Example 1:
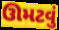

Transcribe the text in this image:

ઊમટવું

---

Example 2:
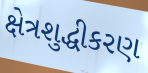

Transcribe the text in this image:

ક્ષેત્રશુદ્ધીકરણ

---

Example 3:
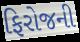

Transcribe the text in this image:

ફિરોજની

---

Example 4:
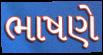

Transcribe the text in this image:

ભાષણે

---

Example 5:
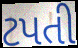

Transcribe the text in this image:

ટપતી